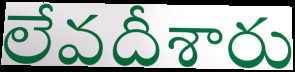
లేవదీశారు